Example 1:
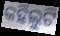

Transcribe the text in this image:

କହିଲୁଟି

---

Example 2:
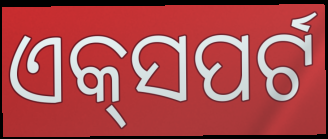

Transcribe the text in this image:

ଏକ୍‌ସପର୍ଟ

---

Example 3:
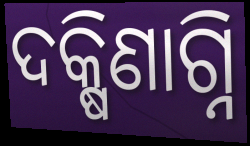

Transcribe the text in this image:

ଦକ୍ଷିଣାଗ୍ନି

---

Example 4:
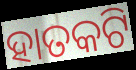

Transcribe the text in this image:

ହାତକଟି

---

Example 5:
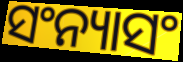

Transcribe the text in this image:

ସଂନ୍ୟାସଂ